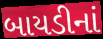
બાયડીનાં